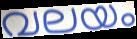
വലയം